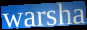
warsha